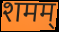
शमम्